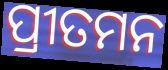
ପ୍ରୀତମନ